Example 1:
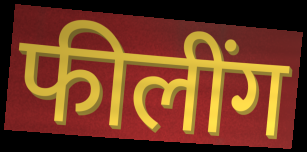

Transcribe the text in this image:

फीलींग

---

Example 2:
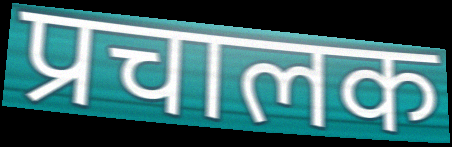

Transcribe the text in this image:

प्रचालक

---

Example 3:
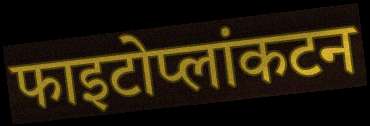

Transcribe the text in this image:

फाइटोप्लांकटन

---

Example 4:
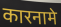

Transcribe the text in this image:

कारनामे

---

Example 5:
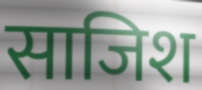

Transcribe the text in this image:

साजिश